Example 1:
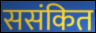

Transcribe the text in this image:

ससंकित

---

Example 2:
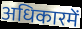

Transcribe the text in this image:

अधिकारमें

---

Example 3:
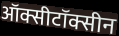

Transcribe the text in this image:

ऑक्सीटॉक्सीन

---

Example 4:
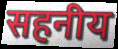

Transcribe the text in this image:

सहनीय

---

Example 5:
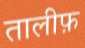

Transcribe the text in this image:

तालीफ़